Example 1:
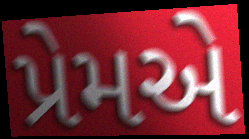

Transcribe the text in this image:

પ્રેમએ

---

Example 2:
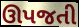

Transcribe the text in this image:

ઊપજતી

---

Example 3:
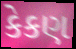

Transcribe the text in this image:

કેકણ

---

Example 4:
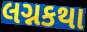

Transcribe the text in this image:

લગ્નકથા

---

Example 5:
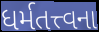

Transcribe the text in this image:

ધર્મતત્ત્વના